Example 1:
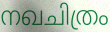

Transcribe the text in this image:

നഖചിത്രം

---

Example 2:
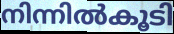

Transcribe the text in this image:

നിന്നിൽകൂടി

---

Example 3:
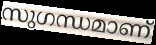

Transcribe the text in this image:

സുഗന്ധമാണ്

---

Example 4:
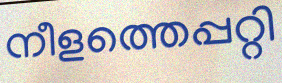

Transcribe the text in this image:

നീളത്തെപ്പറ്റി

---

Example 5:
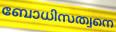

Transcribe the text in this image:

ബോധിസത്വനെ